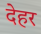
देहर